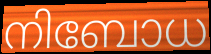
നിബോധ